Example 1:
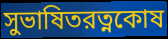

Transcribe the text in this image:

সুভাষিতরত্নকোষ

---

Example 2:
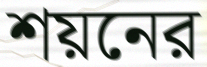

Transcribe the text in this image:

শয়নের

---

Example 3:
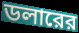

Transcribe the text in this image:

ডলারের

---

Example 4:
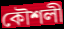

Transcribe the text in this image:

কৌশলী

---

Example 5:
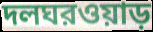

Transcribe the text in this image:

দলঘরওয়াড়